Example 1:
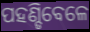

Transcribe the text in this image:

ପହଣ୍ଡିବେଳେ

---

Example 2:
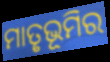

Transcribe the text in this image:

ମାତୃଭୂମିର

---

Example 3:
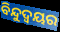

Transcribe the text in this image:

ବିନ୍ଦୁଦ୍ବୟର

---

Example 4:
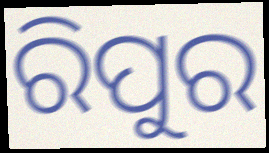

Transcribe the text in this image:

ରିପୁର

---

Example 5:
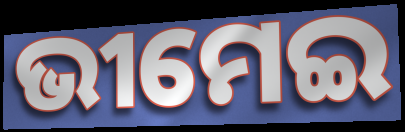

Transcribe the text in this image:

ଭୀମେଇ